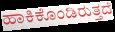
ಹಾಕಿಕೊಂಡಿರುತ್ತದೆ